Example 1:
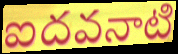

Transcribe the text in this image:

ఐదవనాటి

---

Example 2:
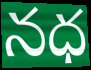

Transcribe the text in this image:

నధ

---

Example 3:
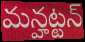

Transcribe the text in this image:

మన్హట్టన్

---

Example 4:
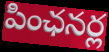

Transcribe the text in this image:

పింఛనర్ల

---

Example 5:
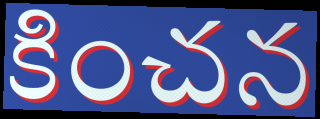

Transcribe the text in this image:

కించన